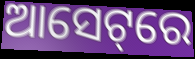
ଆସେଟ୍‌ରେ